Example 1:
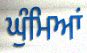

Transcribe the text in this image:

ਘੁੰਮਿਆਂ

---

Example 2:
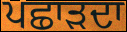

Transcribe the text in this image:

ਪਛਾੜਦਾ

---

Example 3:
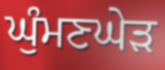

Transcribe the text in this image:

ਘੁੰਮਣਘੇੜ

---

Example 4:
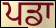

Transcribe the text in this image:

ਪਡਾ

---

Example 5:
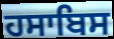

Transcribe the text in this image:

ਹਸਾਬਿਸ